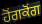
ਹੋਂਗਕੋਂਗ